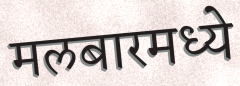
मलबारमध्ये